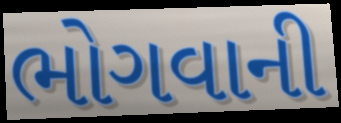
ભોગવાની